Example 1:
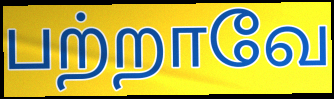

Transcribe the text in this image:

பற்றாவே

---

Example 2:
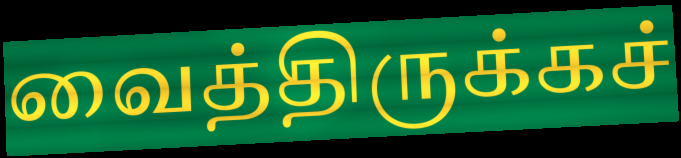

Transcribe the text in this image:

வைத்திருக்கச்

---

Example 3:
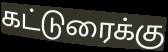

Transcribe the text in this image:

கட்டுரைக்கு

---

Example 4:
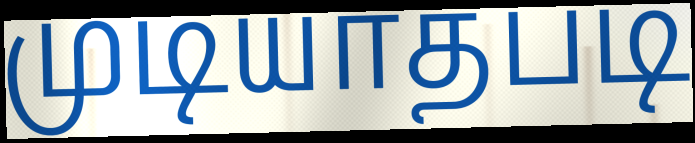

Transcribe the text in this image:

முடியாதபடி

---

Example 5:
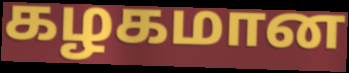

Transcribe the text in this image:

கழகமான